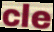
cle